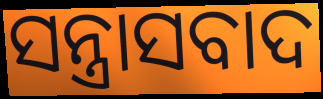
ସନ୍ତ୍ରାସବାଦ